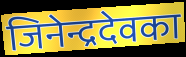
जिनेन्द्रदेवका